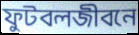
ফুটবলজীবনে